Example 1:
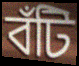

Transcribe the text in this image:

বঁটি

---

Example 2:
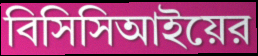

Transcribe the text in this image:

বিসিসিআইয়ের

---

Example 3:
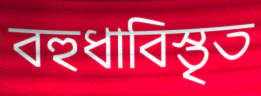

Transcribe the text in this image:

বহুধাবিস্তৃত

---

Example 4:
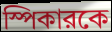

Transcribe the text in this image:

স্পিকারকে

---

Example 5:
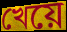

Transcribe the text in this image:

খেয়ে